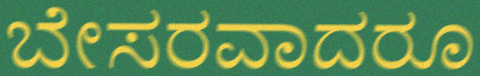
ಬೇಸರವಾದರೂ